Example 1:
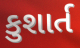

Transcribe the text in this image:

કુશાર્ત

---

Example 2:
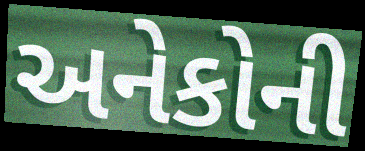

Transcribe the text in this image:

અનેકોની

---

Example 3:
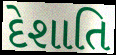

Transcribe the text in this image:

દેશાતિ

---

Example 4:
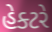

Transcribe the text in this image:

હેક્ટરે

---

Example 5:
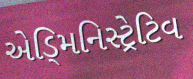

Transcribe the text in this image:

એડ્મિનિસ્ટ્રેટિવ